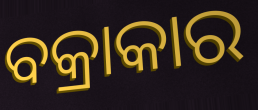
ବକ୍ରାକାର